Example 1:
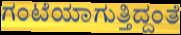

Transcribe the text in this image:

ಗಂಟೆಯಾಗುತ್ತಿದ್ದಂತೆ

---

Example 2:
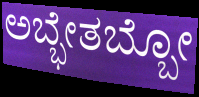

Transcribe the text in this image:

ಅಬ್ಭೇತಬ್ಬೋ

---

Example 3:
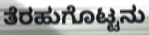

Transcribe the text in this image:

ತೆರಹುಗೊಟ್ಟನು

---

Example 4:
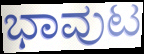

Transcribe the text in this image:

ಭಾವುಟ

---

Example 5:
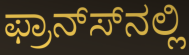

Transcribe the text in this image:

ಫ್ರಾನ್ಸ್‍ನಲ್ಲಿ